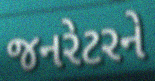
જનરેટરને